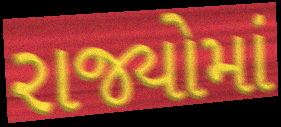
રાજ્યોમાં